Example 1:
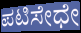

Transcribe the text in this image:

ಪಟಿಸೇಧೇ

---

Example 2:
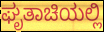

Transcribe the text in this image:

ಘೃತಾಚಿಯಲ್ಲಿ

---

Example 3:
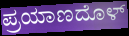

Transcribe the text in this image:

ಪ್ರಯಾಣದೊಳ್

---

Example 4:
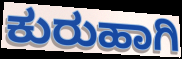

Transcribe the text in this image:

ಕುರುಹಾಗಿ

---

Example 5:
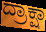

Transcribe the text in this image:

ದ್ರಾಕ್ಷಾ